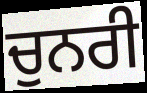
ਚੁਨਰੀ